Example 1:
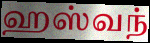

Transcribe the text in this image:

ஹஸ்வந்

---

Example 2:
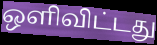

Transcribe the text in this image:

ஒளிவிட்டது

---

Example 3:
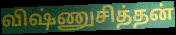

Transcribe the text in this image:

விஷ்ணுசித்தன்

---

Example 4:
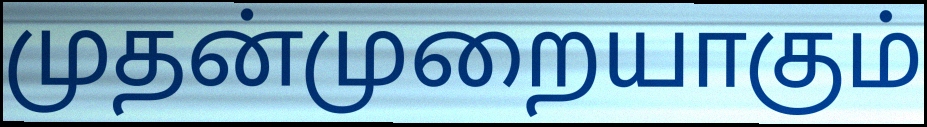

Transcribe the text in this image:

முதன்முறையாகும்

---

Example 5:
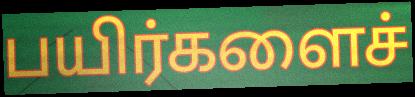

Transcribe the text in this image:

பயிர்களைச்